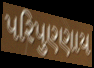
પરિપુણ્ણાય